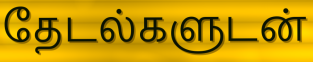
தேடல்களுடன்